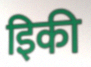
इिकी